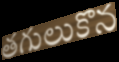
తగులుకొన